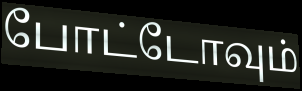
போட்டோவும்